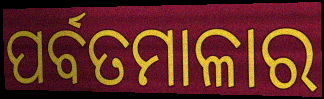
ପର୍ବତମାଳାର